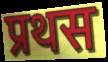
प्रथस